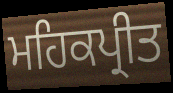
ਮਹਿਕਪ੍ਰੀਤ